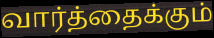
வார்த்தைக்கும்